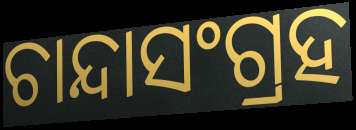
ଚାନ୍ଦାସଂଗ୍ରହ